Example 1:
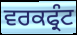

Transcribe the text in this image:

ਵਰਕਫ੍ਰੰਟ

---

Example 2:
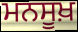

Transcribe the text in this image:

ਮਨਸੂਖ਼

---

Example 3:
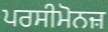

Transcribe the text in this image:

ਪਰਸੀਮੋਨਜ਼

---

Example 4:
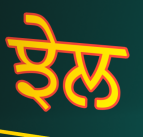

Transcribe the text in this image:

ਝੇਲ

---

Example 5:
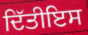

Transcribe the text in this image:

ਦਿੱਤੀਇਸ